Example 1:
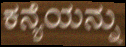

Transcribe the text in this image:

ಕನ್ಯೆಯನ್ನು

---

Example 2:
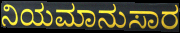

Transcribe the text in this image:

ನಿಯಮಾನುಸಾರ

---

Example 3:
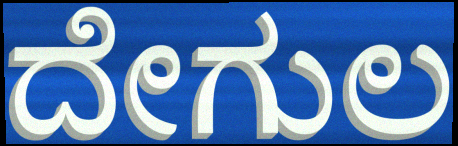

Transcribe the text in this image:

ದೇಗುಲ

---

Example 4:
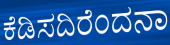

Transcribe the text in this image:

ಕೆಡಿಸದಿರೆಂದನಾ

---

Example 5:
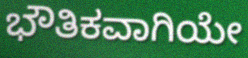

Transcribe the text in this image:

ಭೌತಿಕವಾಗಿಯೇ